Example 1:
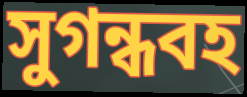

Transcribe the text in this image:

সুগন্ধবহ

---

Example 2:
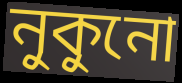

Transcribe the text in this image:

নুকুনো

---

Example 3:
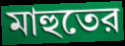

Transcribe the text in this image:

মাহুতের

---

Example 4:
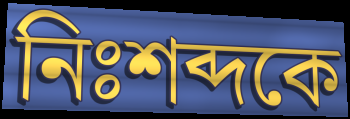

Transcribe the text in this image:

নিঃশব্দকে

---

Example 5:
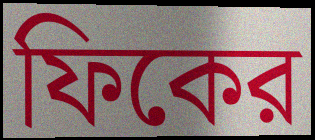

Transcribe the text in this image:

ফিকের